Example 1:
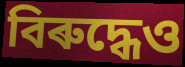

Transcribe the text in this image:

বিৰুদ্ধেও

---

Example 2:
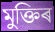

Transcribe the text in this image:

মুক্তিৰ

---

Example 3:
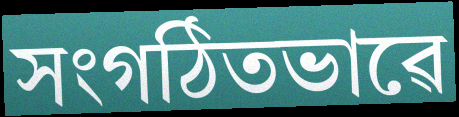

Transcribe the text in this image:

সংগঠিতভাৱে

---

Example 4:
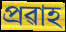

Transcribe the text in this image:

প্ৰৱাহ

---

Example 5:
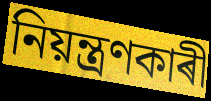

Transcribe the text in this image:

নিয়ন্ত্ৰণকাৰী